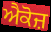
ਐਕੋਜ਼